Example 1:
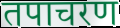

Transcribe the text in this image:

तपाचरण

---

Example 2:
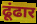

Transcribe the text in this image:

ढूंढार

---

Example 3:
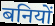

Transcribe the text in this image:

बनियों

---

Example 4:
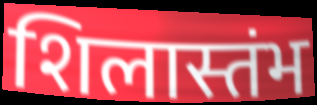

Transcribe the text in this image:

शिलास्तंभ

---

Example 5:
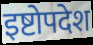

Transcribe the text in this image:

इष्टोपदेश